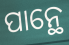
ପାନ୍ଥେ